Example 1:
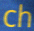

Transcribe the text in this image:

ch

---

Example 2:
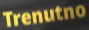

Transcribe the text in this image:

Trenutno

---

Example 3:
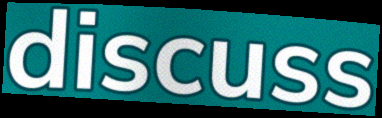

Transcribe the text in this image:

discuss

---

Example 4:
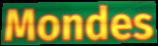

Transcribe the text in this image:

Mondes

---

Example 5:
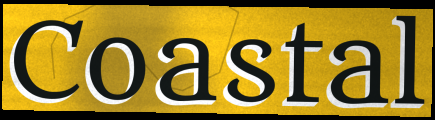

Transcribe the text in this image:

Coastal